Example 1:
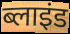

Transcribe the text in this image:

ब्लाइंड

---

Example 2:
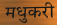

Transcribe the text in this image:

मधुकरी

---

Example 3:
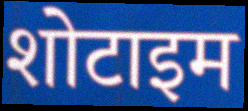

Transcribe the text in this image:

शोटाइम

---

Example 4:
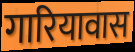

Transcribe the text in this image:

गारियावास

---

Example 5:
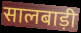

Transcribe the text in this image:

सालबाड़ी